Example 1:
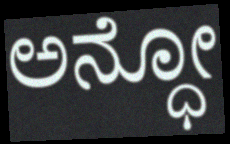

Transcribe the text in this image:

ಅನ್ಧೋ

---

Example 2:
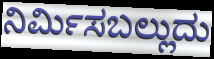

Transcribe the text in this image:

ನಿರ್ಮಿಸಬಲ್ಲುದು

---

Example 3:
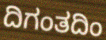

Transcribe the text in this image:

ದಿಗಂತದಿಂ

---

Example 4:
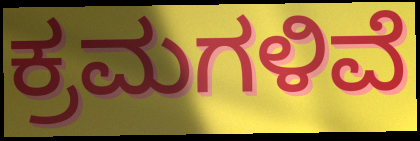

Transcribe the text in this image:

ಕ್ರಮಗಳಿವೆ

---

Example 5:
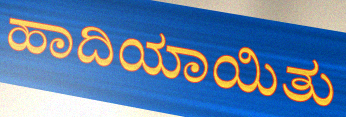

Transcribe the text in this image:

ಹಾದಿಯಾಯಿತು